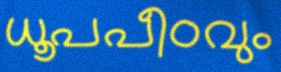
ധൂപപീഠവും